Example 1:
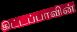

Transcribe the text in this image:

கிட்டப்பாவின்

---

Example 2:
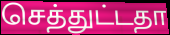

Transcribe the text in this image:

செத்துட்டதா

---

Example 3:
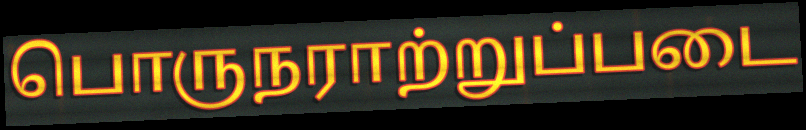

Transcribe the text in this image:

பொருநராற்றுப்படை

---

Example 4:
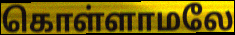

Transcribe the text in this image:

கொள்ளாமலே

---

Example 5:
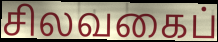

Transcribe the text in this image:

சிலவகைப்